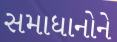
સમાધાનોને